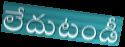
లేదుటండీ